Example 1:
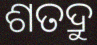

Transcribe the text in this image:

ଶତଦ୍ରୁ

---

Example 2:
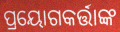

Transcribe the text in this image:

ପ୍ରୟୋଗକର୍ତ୍ତାଙ୍କ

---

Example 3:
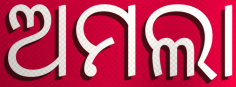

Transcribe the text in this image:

ଅମଲା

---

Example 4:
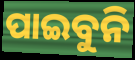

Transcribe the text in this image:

ପାଇବୁନି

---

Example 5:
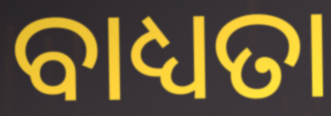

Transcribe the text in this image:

ବାଧ୍ୟତା